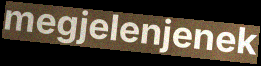
megjelenjenek